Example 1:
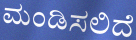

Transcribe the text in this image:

ಮಂಡಿಸಲಿದೆ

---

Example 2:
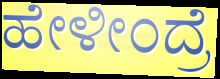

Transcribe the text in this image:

ಹೇಳೀಂದ್ರೆ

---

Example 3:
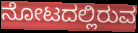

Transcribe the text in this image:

ನೋಟದಲ್ಲಿರುವ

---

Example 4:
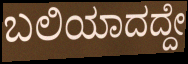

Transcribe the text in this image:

ಬಲಿಯಾದದ್ದೇ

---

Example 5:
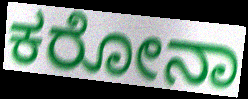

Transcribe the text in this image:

ಕರೋನಾ